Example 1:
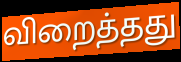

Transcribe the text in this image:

விறைத்தது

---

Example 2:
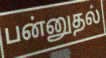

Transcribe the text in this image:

பன்னுதல்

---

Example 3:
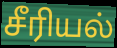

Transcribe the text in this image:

சீரியல்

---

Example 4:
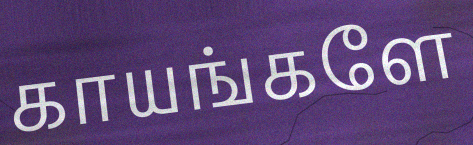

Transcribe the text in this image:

காயங்களே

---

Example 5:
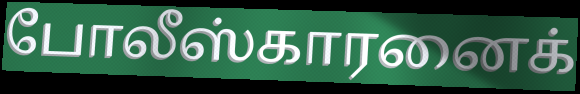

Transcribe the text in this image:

போலீஸ்காரனைக்